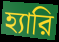
হ্যারি